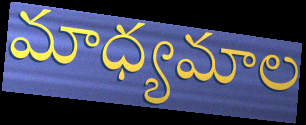
మాధ్యమాల